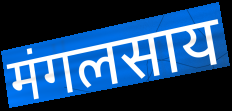
मंगलसाय